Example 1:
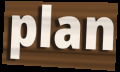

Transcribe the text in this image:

plan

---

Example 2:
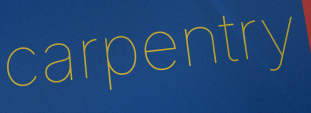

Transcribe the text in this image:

carpentry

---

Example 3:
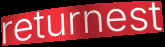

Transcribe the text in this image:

returnest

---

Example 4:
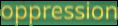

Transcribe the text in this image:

oppression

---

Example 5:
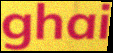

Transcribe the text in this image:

ghai